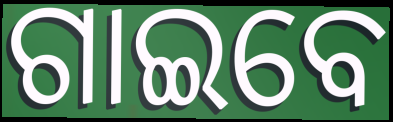
ଗାଇବେ